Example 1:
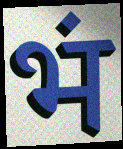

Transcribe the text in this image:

भं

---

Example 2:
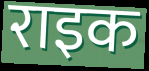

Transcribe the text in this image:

राइक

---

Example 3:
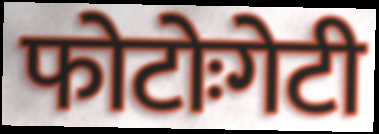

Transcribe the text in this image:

फोटोःगेटी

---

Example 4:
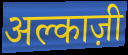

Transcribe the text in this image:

अल्काज़ी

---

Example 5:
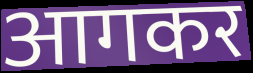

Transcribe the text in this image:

आगकर